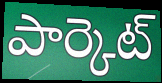
పార్కెట్